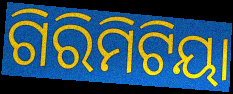
ଗିରିମିଟିୟା